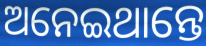
ଅନେଇଥାନ୍ତେ